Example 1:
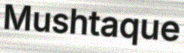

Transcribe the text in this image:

Mushtaque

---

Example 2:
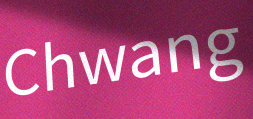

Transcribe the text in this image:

Chwang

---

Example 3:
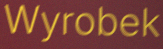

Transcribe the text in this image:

Wyrobek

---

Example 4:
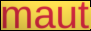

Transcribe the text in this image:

maut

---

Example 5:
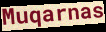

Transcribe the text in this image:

Muqarnas